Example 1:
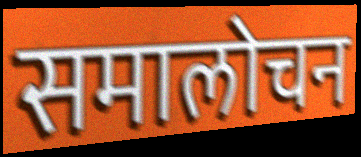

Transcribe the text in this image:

समालोचन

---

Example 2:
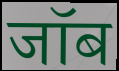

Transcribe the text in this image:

जॉब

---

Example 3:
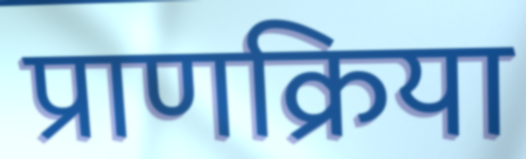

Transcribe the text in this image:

प्राणक्रिया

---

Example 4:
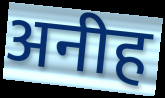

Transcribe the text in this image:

अनीह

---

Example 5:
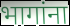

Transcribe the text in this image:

भागांना